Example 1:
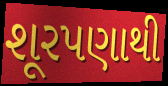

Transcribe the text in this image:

શૂરપણાથી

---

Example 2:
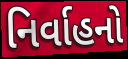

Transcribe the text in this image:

નિર્વાહનો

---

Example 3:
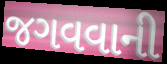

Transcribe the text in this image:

જગવવાની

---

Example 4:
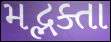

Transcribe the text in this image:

મદ્ભક્તા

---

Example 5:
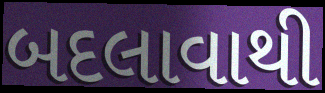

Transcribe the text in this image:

બદલાવાથી